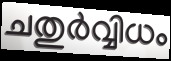
ചതുർവ്വിധം